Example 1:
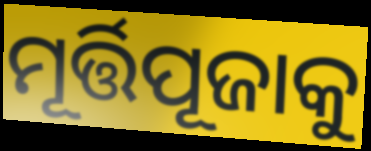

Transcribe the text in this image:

ମୂର୍ତ୍ତିପୂଜାକୁ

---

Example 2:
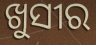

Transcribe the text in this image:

ଖୁସୀର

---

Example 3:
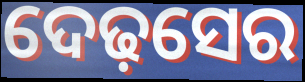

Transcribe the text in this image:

ଦେଢ଼ସେର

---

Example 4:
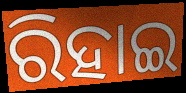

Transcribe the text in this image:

ରିହାଇ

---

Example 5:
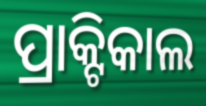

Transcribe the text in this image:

ପ୍ରାକ୍ଟିକାଲ